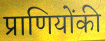
प्राणियोंकी